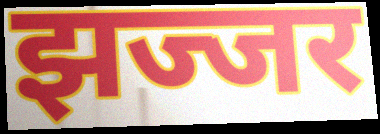
झज्जर